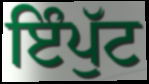
ਇੰਪੁੱਟ